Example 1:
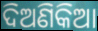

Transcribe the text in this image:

ଦିଅଣିକିଆ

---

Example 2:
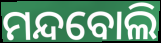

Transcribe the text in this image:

ମନ୍ଦବୋଲି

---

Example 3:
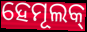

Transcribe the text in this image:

ହେମୂଲକ୍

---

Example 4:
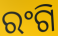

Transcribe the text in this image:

ରଂଗି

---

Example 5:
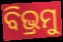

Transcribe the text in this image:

ବିଭ୍ରମୁ